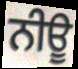
ਨੀਊ